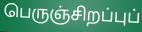
பெருஞ்சிறப்புப்